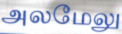
அலமேலு